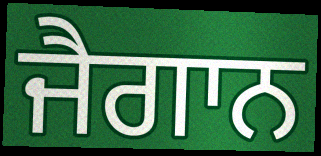
ਜੈਗਾਨ